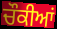
ਚੌਕੀਆਂ